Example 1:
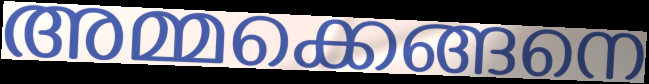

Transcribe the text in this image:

അമ്മക്കെങ്ങനെ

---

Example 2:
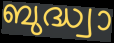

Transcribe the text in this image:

ബുദ്ധ്വാ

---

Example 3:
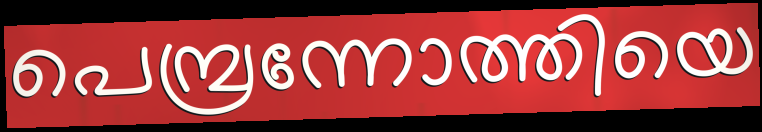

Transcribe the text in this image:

പെമ്പ്രന്നോത്തിയെ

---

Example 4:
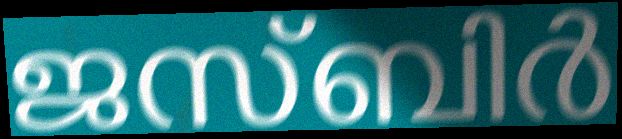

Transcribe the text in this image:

ജസ്ബിർ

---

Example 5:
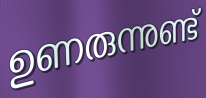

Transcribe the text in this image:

ഉണരുന്നുണ്ട്